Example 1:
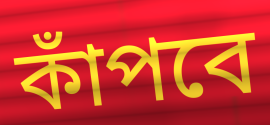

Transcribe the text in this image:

কাঁপবে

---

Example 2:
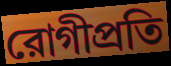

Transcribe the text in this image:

রোগীপ্রতি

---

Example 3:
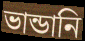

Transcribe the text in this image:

ভান্ডানি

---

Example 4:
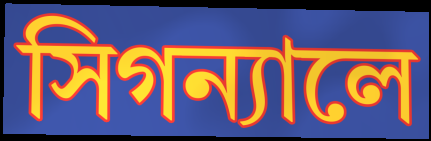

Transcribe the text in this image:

সিগন্যালে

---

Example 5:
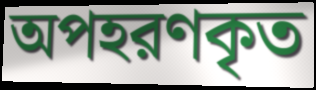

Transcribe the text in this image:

অপহরণকৃত